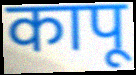
कापू